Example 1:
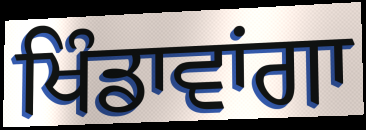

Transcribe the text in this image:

ਖਿੰਡਾਵਾਂਗਾ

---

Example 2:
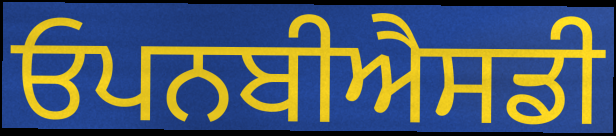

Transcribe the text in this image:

ਓਪਨਬੀਐਸਡੀ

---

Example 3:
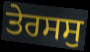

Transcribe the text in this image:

ਤੇਰਸਸੁ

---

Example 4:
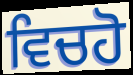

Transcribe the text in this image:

ਵਿਚਹੋ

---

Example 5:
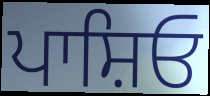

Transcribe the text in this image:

ਪਾਸ਼ਿਓ